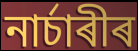
নাৰ্চাৰীৰ